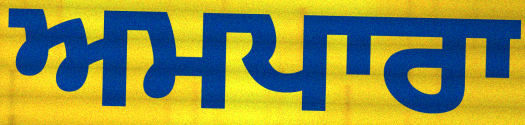
ਅਮਪਾਰਾ